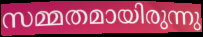
സമ്മതമായിരുന്നു